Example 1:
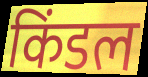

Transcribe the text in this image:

किंडल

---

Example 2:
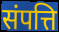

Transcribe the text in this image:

संपत्ति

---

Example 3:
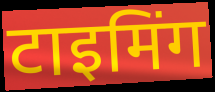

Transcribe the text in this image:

टाइमिंग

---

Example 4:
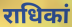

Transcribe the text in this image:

राधिकां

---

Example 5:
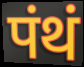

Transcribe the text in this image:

पंथं